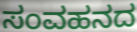
ಸಂವಹನದ